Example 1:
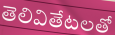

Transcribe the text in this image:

తెలివితేటలతో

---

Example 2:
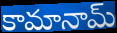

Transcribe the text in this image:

కామానామ్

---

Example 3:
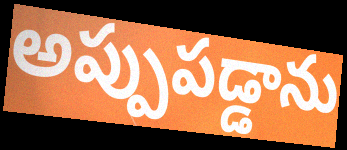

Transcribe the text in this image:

అప్పుపడ్డాను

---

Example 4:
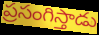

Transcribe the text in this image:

ప్రసంగిస్తాడు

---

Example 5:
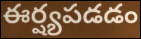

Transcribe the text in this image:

ఈర్ష్యపడడం